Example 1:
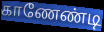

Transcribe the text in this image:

காணேண்டி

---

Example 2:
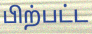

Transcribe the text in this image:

பிற்பட்ட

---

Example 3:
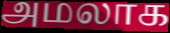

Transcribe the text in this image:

அமலாக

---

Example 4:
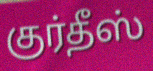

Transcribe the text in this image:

குர்தீஸ்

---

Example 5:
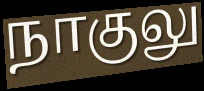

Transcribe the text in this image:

நாகுலு